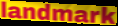
landmark